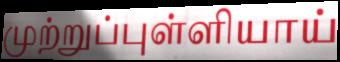
முற்றுப்புள்ளியாய்